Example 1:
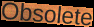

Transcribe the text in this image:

Obsolete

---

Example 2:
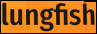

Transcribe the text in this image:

lungfish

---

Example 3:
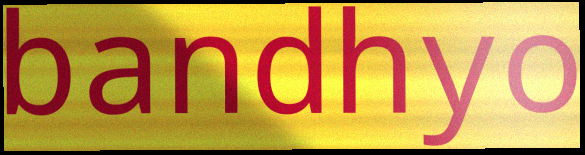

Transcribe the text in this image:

bandhyo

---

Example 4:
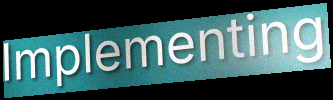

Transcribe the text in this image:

Implementing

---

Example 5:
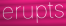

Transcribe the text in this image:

erupts